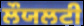
ਲੌਯਲਟੀ